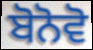
ਬੋਨੋਵੋ